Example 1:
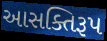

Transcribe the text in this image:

આસક્તિરૂપ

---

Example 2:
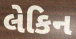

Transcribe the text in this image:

લેકિન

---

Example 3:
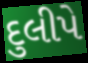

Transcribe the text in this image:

દુલીપે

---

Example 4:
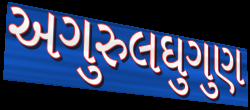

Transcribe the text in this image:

અગુરુલઘુગુણ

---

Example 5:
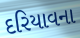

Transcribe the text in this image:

દરિયાવના